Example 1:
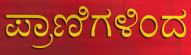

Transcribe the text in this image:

ಪ್ರಾಣಿಗಳಿಂದ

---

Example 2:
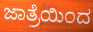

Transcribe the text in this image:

ಜಾತ್ರೆಯಿಂದ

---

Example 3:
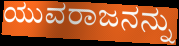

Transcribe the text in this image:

ಯುವರಾಜನನ್ನು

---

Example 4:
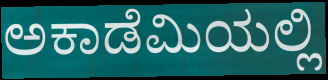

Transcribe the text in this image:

ಅಕಾಡೆಮಿಯಲ್ಲಿ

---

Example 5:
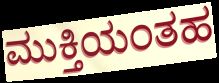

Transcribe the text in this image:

ಮುಕ್ತಿಯಂತಹ